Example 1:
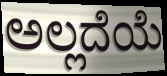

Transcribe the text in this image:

ಅಲ್ಲದೆಯೆ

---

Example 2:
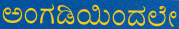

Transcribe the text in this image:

ಅಂಗಡಿಯಿಂದಲೇ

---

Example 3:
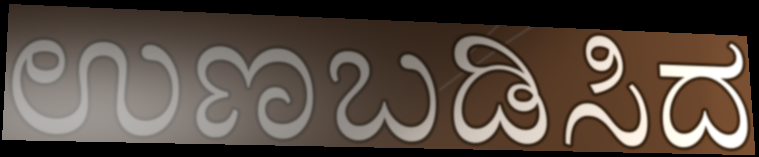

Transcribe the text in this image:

ಉಣಬಡಿಸಿದ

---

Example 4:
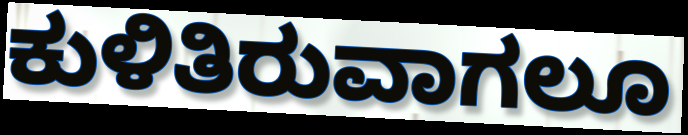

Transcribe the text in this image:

ಕುಳಿತಿರುವಾಗಲೂ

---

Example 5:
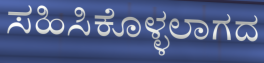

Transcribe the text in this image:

ಸಹಿಸಿಕೊಳ್ಳಲಾಗದ